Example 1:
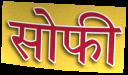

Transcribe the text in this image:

सोफी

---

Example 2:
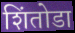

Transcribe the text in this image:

शिंतोडा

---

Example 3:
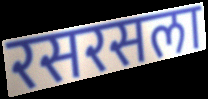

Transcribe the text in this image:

रसरसला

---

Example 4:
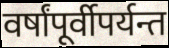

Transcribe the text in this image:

वर्षांपूर्वीपर्यन्त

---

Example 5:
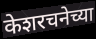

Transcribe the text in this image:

केशरचनेच्या